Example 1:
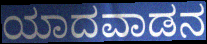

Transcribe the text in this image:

ಯಾದವಾಡನ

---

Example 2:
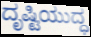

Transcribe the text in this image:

ದೃಷ್ಟಿಯುದ್ಧ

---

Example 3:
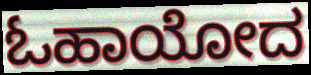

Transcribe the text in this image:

ಓಹಾಯೋದ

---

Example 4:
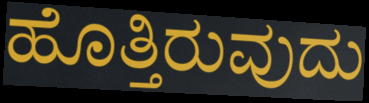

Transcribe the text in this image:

ಹೊತ್ತಿರುವುದು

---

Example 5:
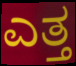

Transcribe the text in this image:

ಎತ್ತ